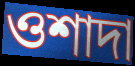
ওশাদা